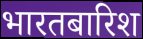
भारतबारिश